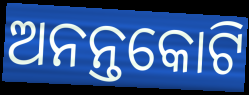
ଅନନ୍ତକୋଟି